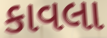
કાવલા